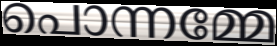
പൊന്നമ്മേ